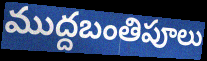
ముద్దబంతిపూలు